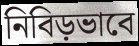
নিবিড়ভাবে